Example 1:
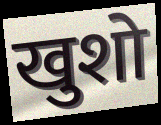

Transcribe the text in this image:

खुशो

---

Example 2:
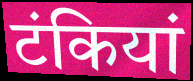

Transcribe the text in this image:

टंकियां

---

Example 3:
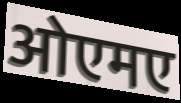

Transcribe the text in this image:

ओएमए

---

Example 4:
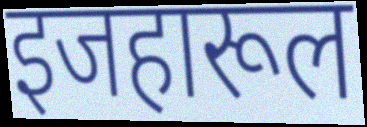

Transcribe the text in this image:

इजहारूल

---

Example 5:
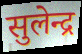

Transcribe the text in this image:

सुलेन्द्र